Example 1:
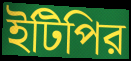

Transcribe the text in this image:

ইটিপির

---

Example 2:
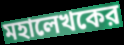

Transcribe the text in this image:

মহালেখকের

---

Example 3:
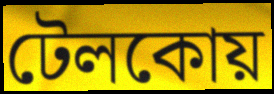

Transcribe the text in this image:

টেলকোয়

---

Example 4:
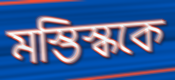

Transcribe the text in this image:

মস্তিস্ককে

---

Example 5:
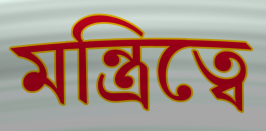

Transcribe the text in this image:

মন্ত্রিত্বে